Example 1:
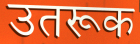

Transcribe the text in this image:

उतरूक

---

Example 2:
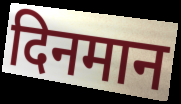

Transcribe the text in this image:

दिनमान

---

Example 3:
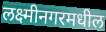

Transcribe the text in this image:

लक्ष्मीनगरमधील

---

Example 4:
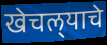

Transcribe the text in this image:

खेचल्याचे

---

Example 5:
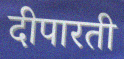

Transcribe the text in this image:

दीपारती